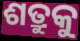
ଶତ୍ରୁକୁ